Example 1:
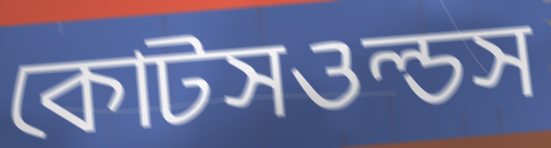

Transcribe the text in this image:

কোটসওল্ডস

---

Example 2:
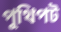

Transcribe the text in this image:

পুথিপট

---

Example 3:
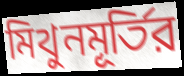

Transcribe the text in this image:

মিথুনমূর্তির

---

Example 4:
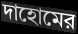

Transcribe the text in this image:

দাহোমের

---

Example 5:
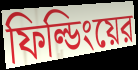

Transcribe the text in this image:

ফিল্ডিংয়ের